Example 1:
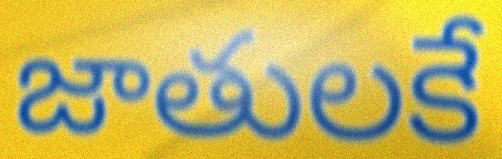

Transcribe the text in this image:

జాతులకే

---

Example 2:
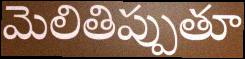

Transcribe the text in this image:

మెలితిప్పుతూ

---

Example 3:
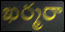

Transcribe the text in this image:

ఖర్మరా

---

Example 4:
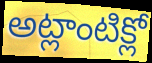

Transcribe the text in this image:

అట్లాంటిక్లో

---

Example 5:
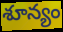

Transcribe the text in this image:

శూన్యం